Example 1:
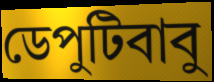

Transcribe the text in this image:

ডেপুটিবাবু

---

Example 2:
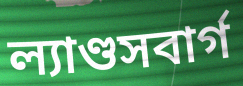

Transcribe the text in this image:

ল্যাণ্ডসবার্গ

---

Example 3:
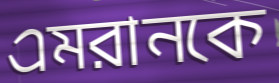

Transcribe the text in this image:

এমরানকে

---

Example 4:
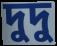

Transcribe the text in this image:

দুদু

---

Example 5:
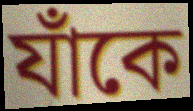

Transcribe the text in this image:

যাঁকে